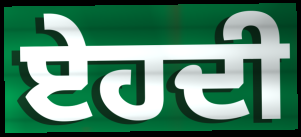
ਏਹਦੀ